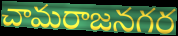
చామరాజనగర